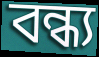
বন্ধ্য